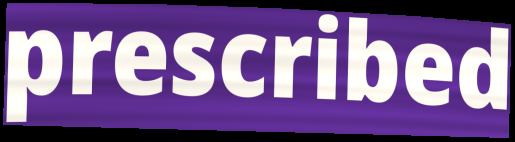
prescribed